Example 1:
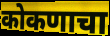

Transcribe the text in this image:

कोकणाचा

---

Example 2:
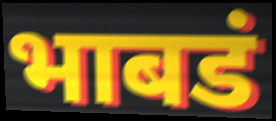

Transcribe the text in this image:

भाबडं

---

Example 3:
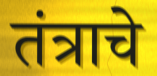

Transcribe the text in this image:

तंत्राचे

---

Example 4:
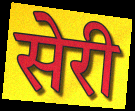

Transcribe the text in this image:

सेरी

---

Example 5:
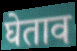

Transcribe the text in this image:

घेताव